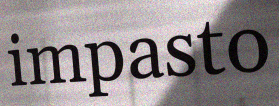
impasto